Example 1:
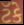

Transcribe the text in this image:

ટૅંકે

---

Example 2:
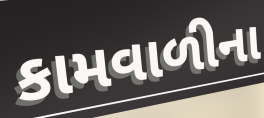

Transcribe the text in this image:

કામવાળીના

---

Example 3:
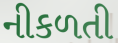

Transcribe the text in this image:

નીકળતી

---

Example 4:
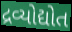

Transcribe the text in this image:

દ્રવ્યોદ્યોત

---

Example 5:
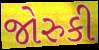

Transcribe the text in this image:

જોરુકી